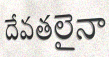
దేవతలైనా